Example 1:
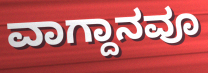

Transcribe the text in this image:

ವಾಗ್ದಾನವೂ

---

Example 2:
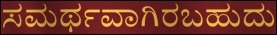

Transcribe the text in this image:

ಸಮರ್ಥವಾಗಿರಬಹುದು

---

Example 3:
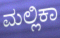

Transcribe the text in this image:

ಮಲ್ಲಿಕಾ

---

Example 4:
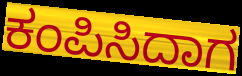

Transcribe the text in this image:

ಕಂಪಿಸಿದಾಗ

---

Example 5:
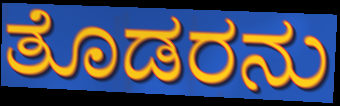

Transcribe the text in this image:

ತೊಡರನು